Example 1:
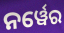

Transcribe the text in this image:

ନର୍ୱେର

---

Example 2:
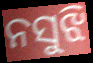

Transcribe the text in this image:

ନସୁଝି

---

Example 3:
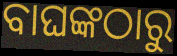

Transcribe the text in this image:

ବାଘଙ୍କଠାରୁ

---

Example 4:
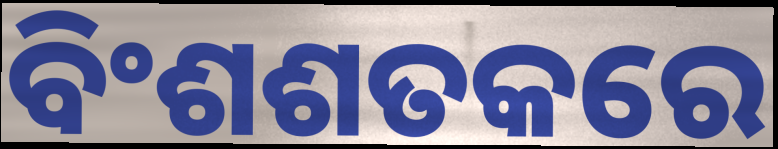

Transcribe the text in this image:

ବିଂଶଶତକରେ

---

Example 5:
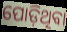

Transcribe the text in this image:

ପୋଡ଼ିଥିବା